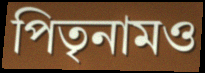
পিতৃনামও